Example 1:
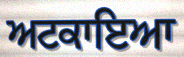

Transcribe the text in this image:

ਅਟਕਾਇਆ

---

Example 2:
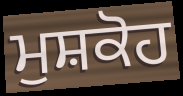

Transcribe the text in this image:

ਮੁਸ਼ਕੋਹ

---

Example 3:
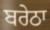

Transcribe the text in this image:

ਬਰੇਠਾ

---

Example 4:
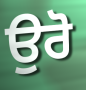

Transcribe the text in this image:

ਉਰੋ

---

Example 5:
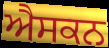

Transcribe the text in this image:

ਐਸਕਨ